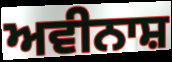
ਅਵੀਨਾਸ਼